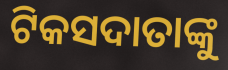
ଟିକସଦାତାଙ୍କୁ